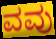
ವವು